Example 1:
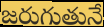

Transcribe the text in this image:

జరుగుతునే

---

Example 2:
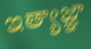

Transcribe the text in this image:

ఇత్యాజ్ఞా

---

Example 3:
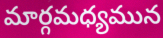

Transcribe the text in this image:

మార్గమధ్యమున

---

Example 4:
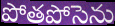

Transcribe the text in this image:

పోతపోసెను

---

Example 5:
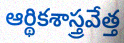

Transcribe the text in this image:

ఆర్థికశాస్త్రవేత్త